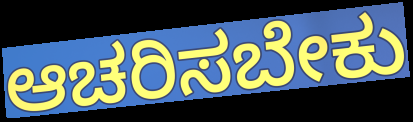
ಆಚರಿಸಬೇಕು